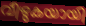
വീഴുകയായി